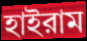
হাইরাম